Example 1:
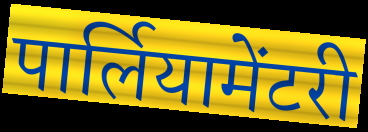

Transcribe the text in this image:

पार्लियामेंटरी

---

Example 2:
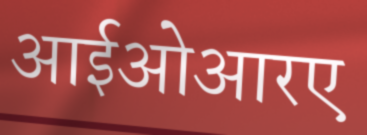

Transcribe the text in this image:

आईओआरए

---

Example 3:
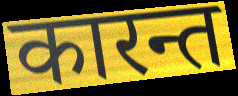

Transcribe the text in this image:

कारन्त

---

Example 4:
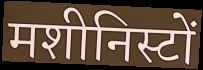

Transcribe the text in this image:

मशीनिस्टों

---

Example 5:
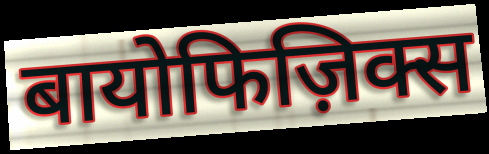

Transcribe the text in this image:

बायोफिज़िक्स